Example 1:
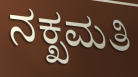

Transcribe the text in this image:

ನಕ್ಖಮತಿ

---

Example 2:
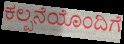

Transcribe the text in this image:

ಕಲ್ಪನೆಯೊಂದಿಗೆ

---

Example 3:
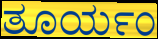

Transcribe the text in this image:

ತೂರ್ಯಂ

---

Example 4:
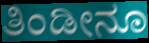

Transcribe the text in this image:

ತಿಂಡೀನೂ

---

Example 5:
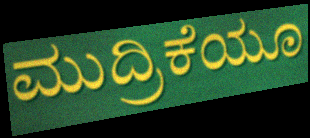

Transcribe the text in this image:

ಮುದ್ರಿಕೆಯೂ